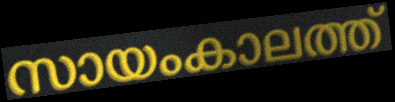
സായംകാലത്ത്